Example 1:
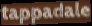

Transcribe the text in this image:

tappadale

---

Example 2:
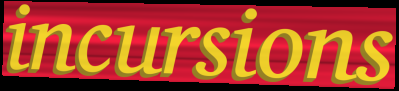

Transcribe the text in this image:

incursions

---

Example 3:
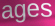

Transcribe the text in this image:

ages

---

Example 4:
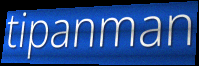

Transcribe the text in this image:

tipanman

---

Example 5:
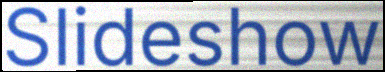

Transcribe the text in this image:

Slideshow